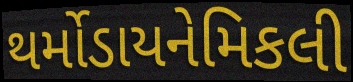
થર્મોડાયનેમિકલી